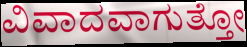
ವಿವಾದವಾಗುತ್ತೋ